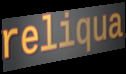
reliqua